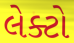
લેક્ટો